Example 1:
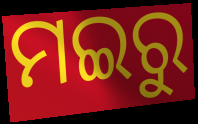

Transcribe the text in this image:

ମଇରୁ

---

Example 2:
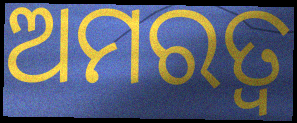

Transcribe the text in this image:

ଅମରତ୍ଵ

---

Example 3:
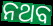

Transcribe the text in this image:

ନଥବ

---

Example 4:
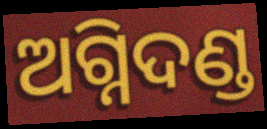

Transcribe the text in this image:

ଅଗ୍ନିଦଣ୍ଡ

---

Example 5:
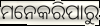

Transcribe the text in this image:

ମନେକରିପାରୁ